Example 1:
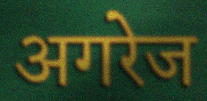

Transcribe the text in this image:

अगरेज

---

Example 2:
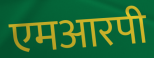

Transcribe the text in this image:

एमआरपी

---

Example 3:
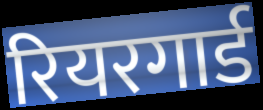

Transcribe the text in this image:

रियरगार्ड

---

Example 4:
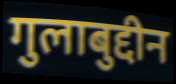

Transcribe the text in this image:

गुलाबुद्दीन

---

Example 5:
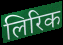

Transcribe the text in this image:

लिरिक